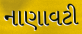
નાણાવટી